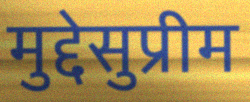
मुद्देसुप्रीम